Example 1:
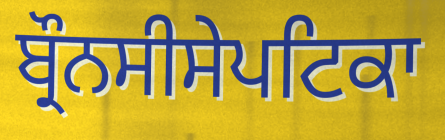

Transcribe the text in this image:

ਬ੍ਰੌਨਸੀਸੇਪਟਿਕਾ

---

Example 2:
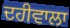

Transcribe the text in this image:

ਦਹੀਵਾਲਾ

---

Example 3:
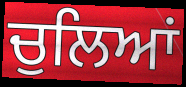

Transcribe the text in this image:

ਚੁਲਿਆਂ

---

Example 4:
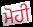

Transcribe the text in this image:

ਮੋਹੀ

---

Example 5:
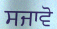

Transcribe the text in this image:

ਸਜਾਵੋ